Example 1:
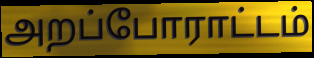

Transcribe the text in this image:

அறப்போராட்டம்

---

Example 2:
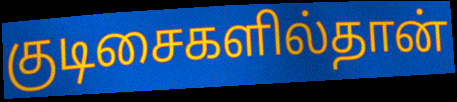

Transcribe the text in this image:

குடிசைகளில்தான்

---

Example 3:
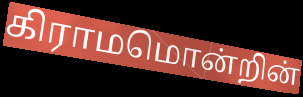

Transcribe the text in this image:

கிராமமொன்றின்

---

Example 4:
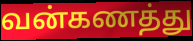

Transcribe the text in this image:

வன்கணத்து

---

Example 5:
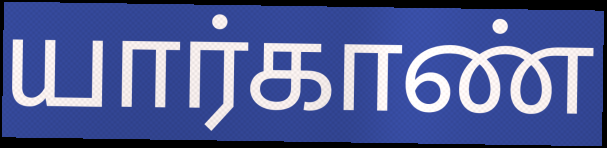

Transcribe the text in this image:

யார்காண்